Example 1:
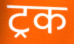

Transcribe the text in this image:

ट्रक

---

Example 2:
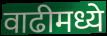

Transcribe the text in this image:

वाढीमध्ये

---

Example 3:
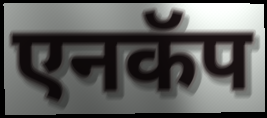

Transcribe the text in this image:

एनकॅप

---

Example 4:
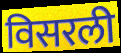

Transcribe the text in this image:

विसरली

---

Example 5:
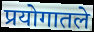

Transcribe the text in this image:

प्रयोगातले